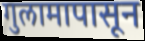
गुलामापासून